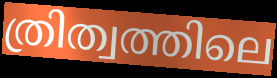
ത്രിത്വത്തിലെ